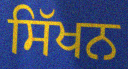
ਸਿੱਖਨ